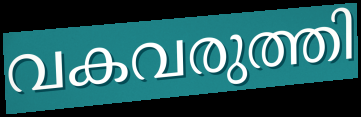
വകവരുത്തി